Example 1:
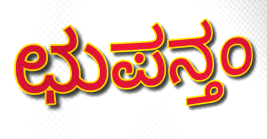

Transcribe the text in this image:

ಛುಪನ್ತಂ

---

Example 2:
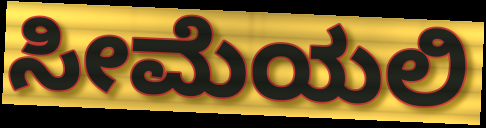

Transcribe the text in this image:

ಸೀಮೆಯಲಿ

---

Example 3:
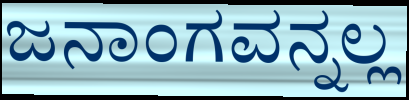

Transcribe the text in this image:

ಜನಾಂಗವನ್ನಲ್ಲ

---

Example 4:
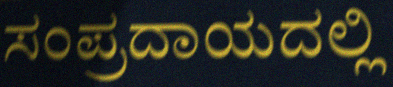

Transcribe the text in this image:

ಸಂಪ್ರದಾಯದಲ್ಲಿ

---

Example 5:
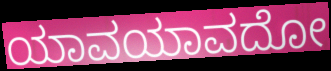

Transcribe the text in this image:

ಯಾವಯಾವದೋ